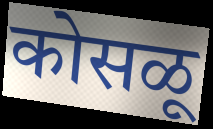
कोसळू